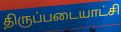
திருப்படையாட்சி